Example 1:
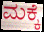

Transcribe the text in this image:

ಮಕ್ಕೆ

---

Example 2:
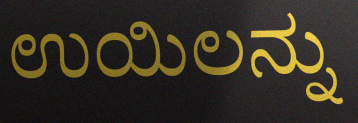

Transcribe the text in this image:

ಉಯಿಲನ್ನು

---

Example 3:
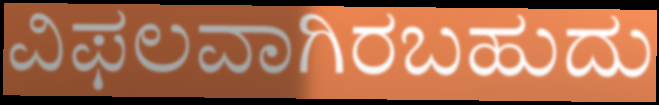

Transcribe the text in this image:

ವಿಫಲವಾಗಿರಬಹುದು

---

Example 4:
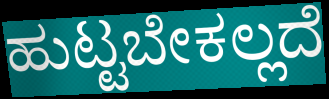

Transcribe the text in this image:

ಹುಟ್ಟಬೇಕಲ್ಲದೆ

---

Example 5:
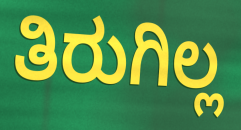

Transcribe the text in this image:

ತಿರುಗಿಲ್ಲ